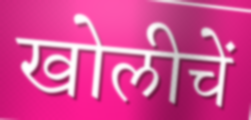
खोलीचें